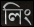
লিং